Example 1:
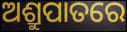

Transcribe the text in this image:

ଅଶ୍ରୁପାତରେ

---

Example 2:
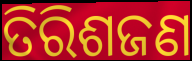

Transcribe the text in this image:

ତିରିଶଜଣ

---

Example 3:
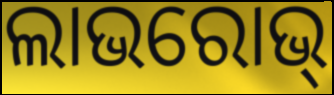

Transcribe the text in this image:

ଲାଭରୋଭ୍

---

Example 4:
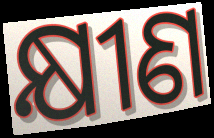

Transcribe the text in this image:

କ୍ଷୀଣ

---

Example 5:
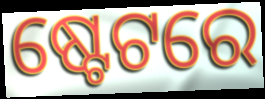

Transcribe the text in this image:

ଷ୍ଟେଟରେ